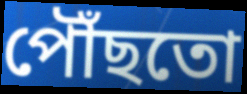
পৌঁছতো